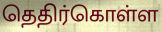
தெதிர்கொள்ள